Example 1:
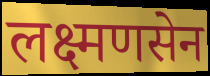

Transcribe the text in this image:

लक्ष्मणसेन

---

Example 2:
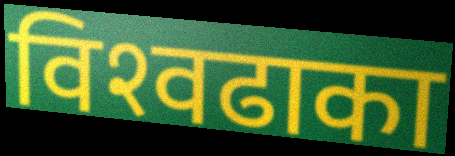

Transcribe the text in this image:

विश्वढाका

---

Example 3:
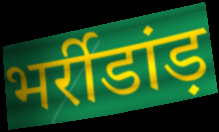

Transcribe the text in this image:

भर्रीडांड़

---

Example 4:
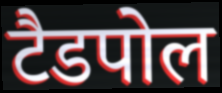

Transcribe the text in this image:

टैडपोल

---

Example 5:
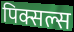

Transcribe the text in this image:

पिक्सल्स